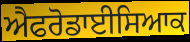
ਐਫਰੋਡਾਈਸਿਆਕ